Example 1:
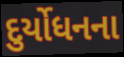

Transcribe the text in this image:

દુર્યોધનના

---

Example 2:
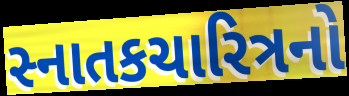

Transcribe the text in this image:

સ્નાતકચારિત્રનો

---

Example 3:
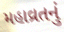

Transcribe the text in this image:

મહાવ્રતનું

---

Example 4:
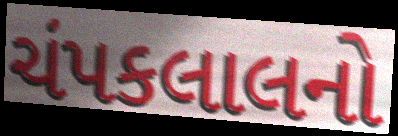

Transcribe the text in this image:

ચંપકલાલનો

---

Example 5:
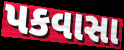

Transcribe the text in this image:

પકવાસા